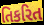
તિકરિત